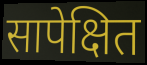
सापेक्षित